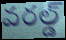
వరల్డ్